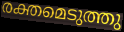
രക്തമെടുത്തു